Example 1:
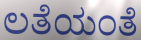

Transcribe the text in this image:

ಲತೆಯಂತೆ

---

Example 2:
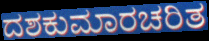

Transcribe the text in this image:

ದಶಕುಮಾರಚರಿತ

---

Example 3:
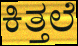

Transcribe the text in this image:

ಕಿತ್ತಲೆ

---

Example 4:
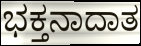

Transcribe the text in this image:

ಭಕ್ತನಾದಾತ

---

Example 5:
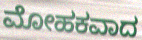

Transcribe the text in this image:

ಮೋಹಕವಾದ